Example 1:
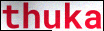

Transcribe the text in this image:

thuka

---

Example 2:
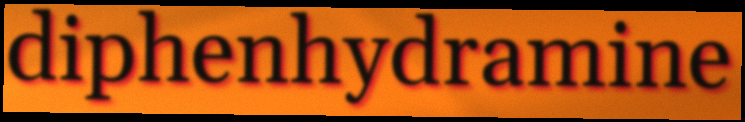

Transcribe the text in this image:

diphenhydramine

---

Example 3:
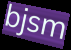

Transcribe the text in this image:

bjsm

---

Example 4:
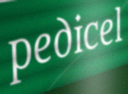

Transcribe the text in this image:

pedicel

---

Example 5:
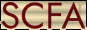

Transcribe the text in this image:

SCFA